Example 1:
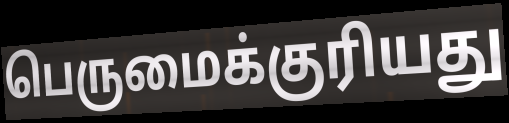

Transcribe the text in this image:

பெருமைக்குரியது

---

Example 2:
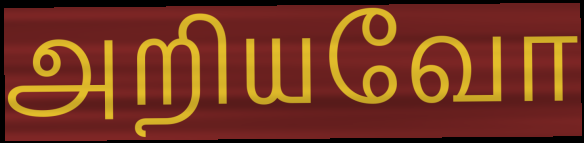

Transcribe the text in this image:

அறியவோ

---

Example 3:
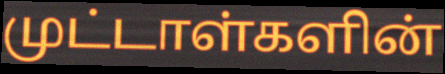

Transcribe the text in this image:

முட்டாள்களின்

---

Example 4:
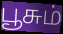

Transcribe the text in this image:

பூசும்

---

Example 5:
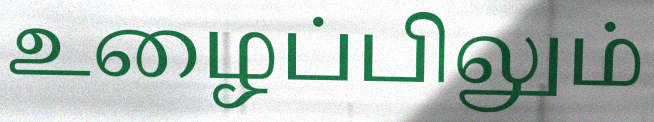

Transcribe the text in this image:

உழைப்பிலும்